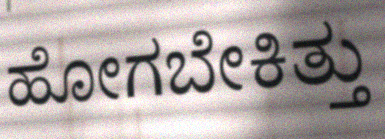
ಹೋಗಬೇಕಿತ್ತು